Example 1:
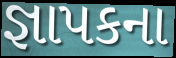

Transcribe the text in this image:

જ્ઞાપકના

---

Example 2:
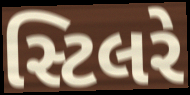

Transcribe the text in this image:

સ્ટિલરે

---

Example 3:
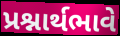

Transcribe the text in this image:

પ્રશ્નાર્થભાવે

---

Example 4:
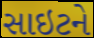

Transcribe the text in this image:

સાઇટને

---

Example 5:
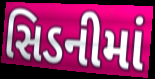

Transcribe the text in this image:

સિડનીમાં